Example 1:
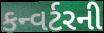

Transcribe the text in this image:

કન્વર્ટરની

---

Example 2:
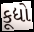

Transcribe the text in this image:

કૂદ્યો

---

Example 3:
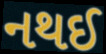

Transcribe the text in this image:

નથઈ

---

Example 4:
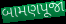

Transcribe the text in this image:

બામણપૂજા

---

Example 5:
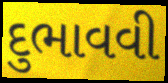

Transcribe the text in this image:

દુભાવવી